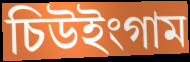
চিউইংগাম